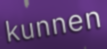
kunnen